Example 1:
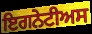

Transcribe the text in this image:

ਇਗਨੇਟੀਅਸ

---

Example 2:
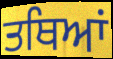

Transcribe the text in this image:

ਤਥਿਆਂ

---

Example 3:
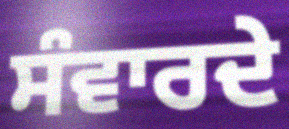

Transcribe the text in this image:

ਸੰਵਾਰਦੇ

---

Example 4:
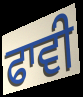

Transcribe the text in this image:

ਫਾਵੀ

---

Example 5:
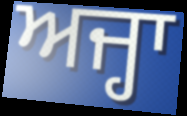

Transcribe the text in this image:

ਅਜ੍ਹਾ